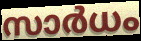
സാർധം